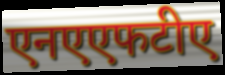
एनएएफटीए